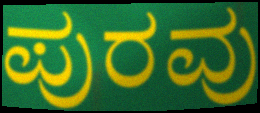
ಪುರವು